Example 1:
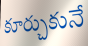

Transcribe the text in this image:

కూర్చుకునే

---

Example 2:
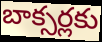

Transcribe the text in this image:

బాక్సర్లకు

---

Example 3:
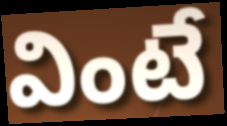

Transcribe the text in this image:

వింటే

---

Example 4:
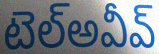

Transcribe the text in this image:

టెల్అవీవ్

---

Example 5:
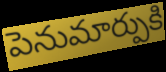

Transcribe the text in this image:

పెనుమార్పుకి